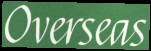
Overseas